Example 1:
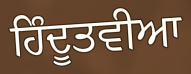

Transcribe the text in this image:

ਹਿੰਦੂਤਵੀਆ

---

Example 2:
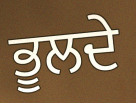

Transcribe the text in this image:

ਭੂਲਦੇ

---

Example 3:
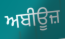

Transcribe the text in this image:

ਅਬੀਊਜ਼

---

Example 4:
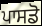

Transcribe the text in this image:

ਪਾਸਡੋ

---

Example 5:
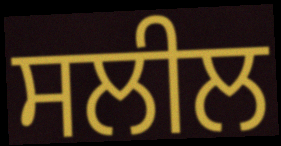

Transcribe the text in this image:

ਸਲੀਲ